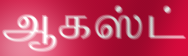
ஆகஸ்ட்